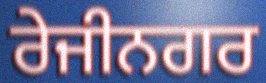
ਰੇਜੀਨਗਰ